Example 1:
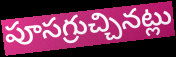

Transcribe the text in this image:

పూసగ్రుచ్చినట్లు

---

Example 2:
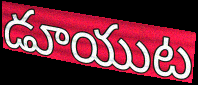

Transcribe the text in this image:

డూయుట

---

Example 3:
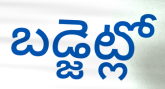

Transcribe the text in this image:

బడ్జెట్లో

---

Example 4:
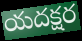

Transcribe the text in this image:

యదక్షర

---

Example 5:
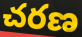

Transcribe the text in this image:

చరణ